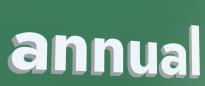
annual